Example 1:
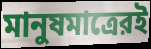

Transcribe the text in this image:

মানুষমাত্রেরই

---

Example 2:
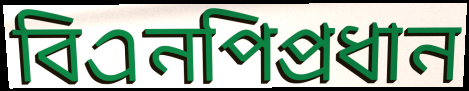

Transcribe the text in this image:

বিএনপিপ্রধান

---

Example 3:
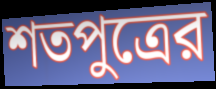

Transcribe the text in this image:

শতপুত্রের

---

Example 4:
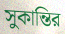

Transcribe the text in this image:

সুকান্তির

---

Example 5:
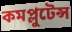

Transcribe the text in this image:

কমপ্লুটেন্স